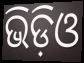
ଭିଡ଼ିଓ